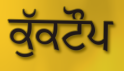
ਕੁੱਕਟੌਪ